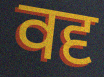
वदृ